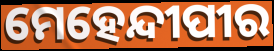
ମେହେନ୍ଦୀପୀର